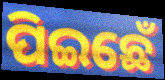
ପିଇଛେଁ